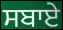
ਸਬਾਏ